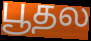
பூதல